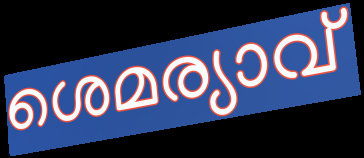
ശെമര്യാവ്